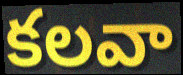
కలవా